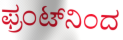
ಫ್ರಂಟ್‌ನಿಂದ